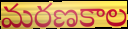
మరణకాల